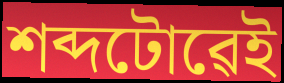
শব্দটোৱেই